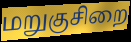
மறுகுசிறை